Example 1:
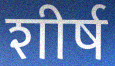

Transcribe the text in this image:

शीर्ष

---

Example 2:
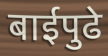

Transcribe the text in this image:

बाईपुढे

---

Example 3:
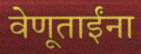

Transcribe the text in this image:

वेणूताईंना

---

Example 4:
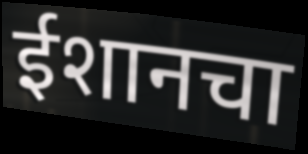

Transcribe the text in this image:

ईशानचा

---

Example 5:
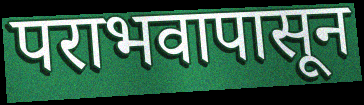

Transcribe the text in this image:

पराभवापासून